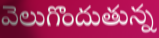
వెలుగొందుతున్న